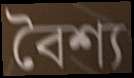
বৈশ্য